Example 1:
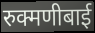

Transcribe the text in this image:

रुक्मणीबाई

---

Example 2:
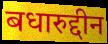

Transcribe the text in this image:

बधारुद्दीन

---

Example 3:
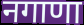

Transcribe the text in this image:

नगाणा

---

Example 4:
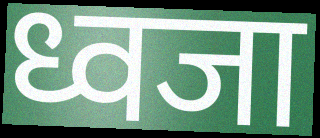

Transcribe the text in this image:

ध्वजा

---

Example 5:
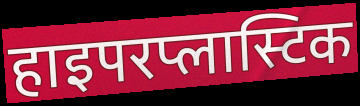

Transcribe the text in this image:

हाइपरप्लास्टिक